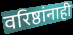
वरिष्ठांनाही